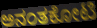
ಅನಂತಕೋಟಿ